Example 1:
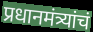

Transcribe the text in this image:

प्रधानमंत्र्यांचं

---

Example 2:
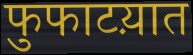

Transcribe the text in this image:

फुफाटय़ात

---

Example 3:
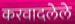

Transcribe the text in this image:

करवादलेले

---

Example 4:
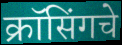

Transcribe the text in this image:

क्रॉसिंगचे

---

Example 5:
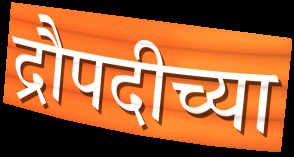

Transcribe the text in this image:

द्रौपदीच्या